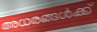
അധരങ്ങൾക്ക്